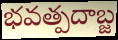
భవత్పదాబ్జ